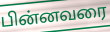
பின்னவரை